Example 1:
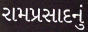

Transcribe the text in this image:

રામપ્રસાદનું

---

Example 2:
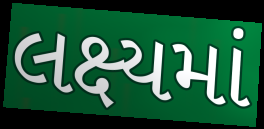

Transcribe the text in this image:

લક્ષ્યમાં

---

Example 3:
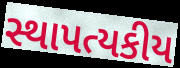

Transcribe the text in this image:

સ્થાપત્યકીય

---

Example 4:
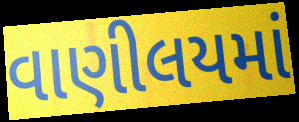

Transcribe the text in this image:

વાણીલયમાં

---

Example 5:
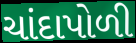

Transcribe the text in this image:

ચાંદાપોળી